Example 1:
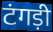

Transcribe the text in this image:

टंगड़ी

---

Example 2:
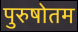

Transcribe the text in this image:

पुरुषोतम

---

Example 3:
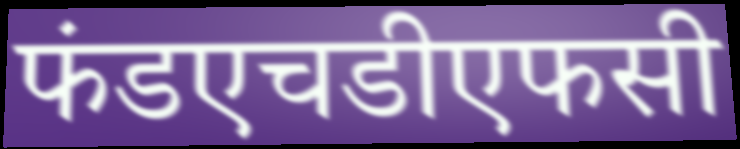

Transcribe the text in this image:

फंडएचडीएफसी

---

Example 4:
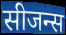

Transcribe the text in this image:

सीजन्स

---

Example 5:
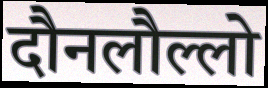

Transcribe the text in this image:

दौनलौल्लो